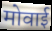
मोवाई